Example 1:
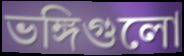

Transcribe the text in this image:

ভঙ্গিগুলো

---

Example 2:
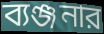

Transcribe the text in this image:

ব্যঞ্জনার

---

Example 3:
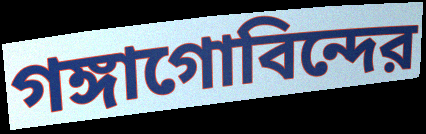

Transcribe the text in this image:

গঙ্গাগোবিন্দের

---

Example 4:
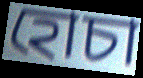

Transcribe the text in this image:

হোচা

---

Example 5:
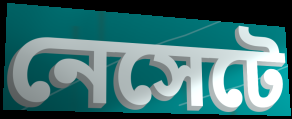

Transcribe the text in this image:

নেসেটে